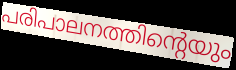
പരിപാലനത്തിന്റെയും